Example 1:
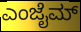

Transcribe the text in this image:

ಎಂಜೈಮ್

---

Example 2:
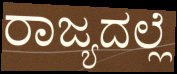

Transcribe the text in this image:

ರಾಜ್ಯದಲ್ಲೆ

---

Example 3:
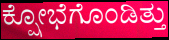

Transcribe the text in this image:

ಕ್ಷೋಭೆಗೊಂಡಿತ್ತು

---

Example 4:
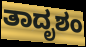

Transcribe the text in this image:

ತಾದೃಶಂ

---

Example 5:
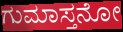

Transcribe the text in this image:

ಗುಮಾಸ್ತನೋ